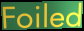
Foiled